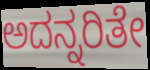
ಅದನ್ನರಿತೇ